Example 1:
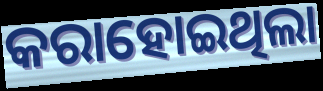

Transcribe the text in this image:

କରାହୋଇଥିଲା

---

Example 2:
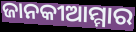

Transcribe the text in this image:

ଜାନକୀଆମ୍ମାର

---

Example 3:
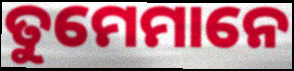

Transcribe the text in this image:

ତୁମେମାନେ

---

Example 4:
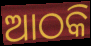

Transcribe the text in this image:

ଆଠକି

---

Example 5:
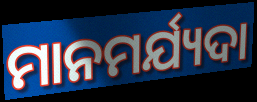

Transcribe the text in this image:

ମାନମର୍ଯ୍ୟଦା